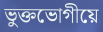
ভুক্তভোগীয়ে